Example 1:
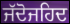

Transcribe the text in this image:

ਜੱਦੋਜਹਿਦ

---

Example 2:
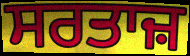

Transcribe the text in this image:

ਸਰਤਾਜ਼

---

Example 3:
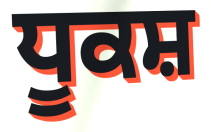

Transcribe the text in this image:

ਧੂਕਸ਼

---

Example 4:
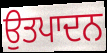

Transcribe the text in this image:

ਉਤਪਾਦਨ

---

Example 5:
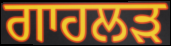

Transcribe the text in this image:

ਗਾਹਲੜ